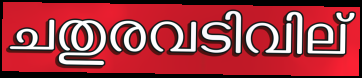
ചതുരവടിവില്